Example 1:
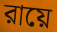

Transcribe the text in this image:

রায়ে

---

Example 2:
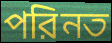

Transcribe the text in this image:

পরিনত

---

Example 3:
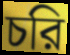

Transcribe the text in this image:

চরি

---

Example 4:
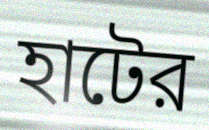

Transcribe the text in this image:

হাটের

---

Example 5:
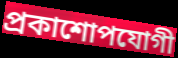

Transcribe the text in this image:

প্রকাশোপযোগী